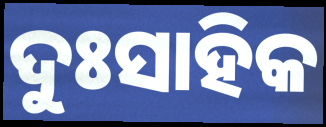
ଦୁଃସାହିକ